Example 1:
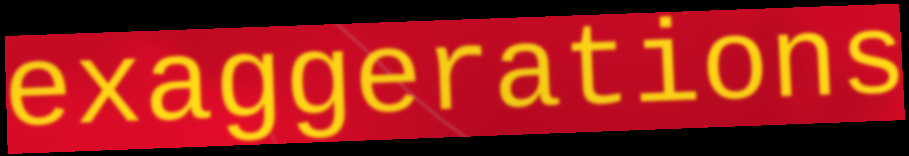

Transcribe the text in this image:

exaggerations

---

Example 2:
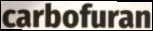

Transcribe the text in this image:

carbofuran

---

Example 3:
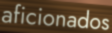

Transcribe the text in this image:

aficionados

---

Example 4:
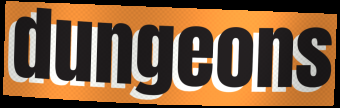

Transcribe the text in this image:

dungeons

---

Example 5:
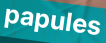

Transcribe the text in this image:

papules